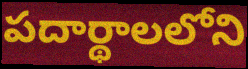
పదార్థాలలోని